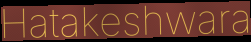
Hatakeshwara